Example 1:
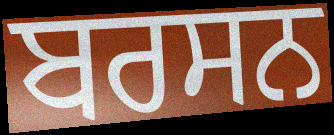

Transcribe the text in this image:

ਬਰਸਨ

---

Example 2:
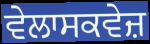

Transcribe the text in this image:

ਵੇਲਾਸਕਵੇਜ਼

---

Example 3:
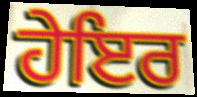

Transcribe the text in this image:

ਹੇਇਰ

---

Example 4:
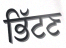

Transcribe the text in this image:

ਭਿੱਟਣ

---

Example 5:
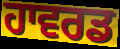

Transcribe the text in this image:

ਹਾਵਰਡ